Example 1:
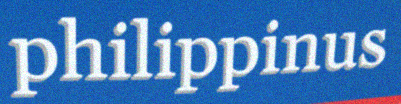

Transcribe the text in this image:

philippinus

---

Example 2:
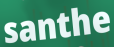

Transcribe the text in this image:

santhe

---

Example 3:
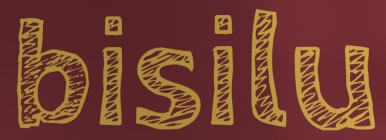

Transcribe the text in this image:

bisilu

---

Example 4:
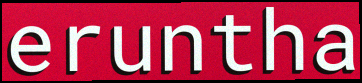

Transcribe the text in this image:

eruntha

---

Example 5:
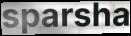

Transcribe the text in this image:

sparsha